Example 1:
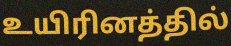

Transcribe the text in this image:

உயிரினத்தில்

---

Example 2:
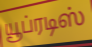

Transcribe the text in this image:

யூப்ரடிஸ்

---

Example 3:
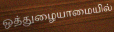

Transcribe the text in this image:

ஒத்துழையாமையில்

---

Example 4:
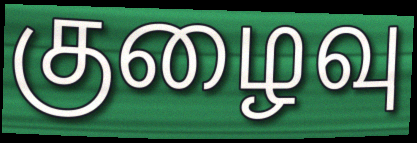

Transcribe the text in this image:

குழைவு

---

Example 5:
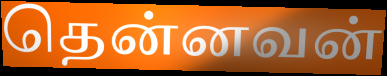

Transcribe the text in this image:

தென்னவன்